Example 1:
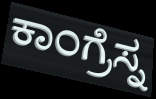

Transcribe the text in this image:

ಕಾಂಗ್ರೆಸ್ನ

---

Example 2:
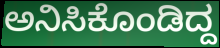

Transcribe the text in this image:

ಅನಿಸಿಕೊಂಡಿದ್ದ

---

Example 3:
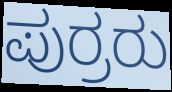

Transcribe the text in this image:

ಪುರ್ರರು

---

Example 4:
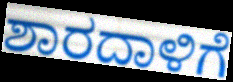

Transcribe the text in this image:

ಶಾರದಾಳಿಗೆ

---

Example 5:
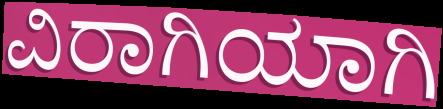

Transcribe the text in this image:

ವಿರಾಗಿಯಾಗಿ